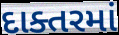
દાક્તરમાં